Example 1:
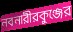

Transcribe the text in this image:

নবনারীরকুঞ্জের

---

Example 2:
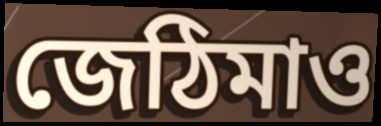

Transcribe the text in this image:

জেঠিমাও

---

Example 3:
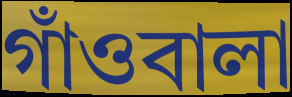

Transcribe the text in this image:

গাঁওবালা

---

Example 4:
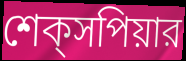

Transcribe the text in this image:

শেক্‌সপিয়ার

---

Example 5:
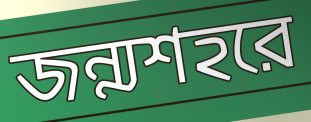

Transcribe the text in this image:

জন্মশহরে